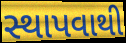
સ્થાપવાથી